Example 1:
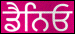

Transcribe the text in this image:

ਡੈਨਿਓ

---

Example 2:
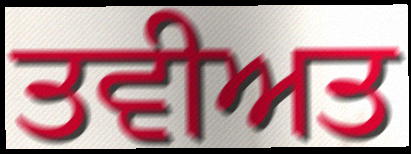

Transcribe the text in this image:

ਤਵੀਅਤ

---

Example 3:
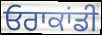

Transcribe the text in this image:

ਓਰਾਕਾਂਡੀ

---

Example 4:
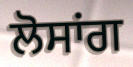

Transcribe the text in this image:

ਲੋਸਾਂਗ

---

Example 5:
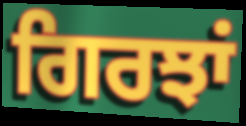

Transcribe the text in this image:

ਗਿਰਝਾਂ